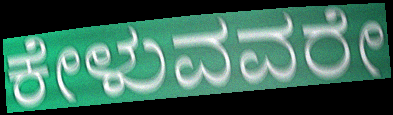
ಕೇಳುವವರೇ